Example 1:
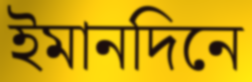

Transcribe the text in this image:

ইমানদিনে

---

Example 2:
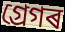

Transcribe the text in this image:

গ্ৰেগৰ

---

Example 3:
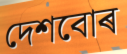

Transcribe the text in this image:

দেশবোৰ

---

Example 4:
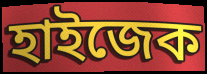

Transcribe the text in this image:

হাইজেক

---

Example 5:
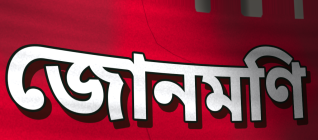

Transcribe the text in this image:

জোনমণি